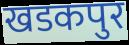
खडकपुर